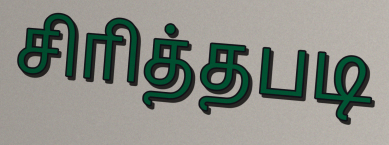
சிரித்தபடி